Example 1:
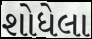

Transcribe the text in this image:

શોધેલા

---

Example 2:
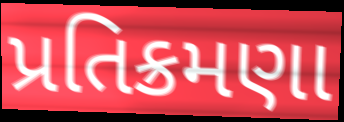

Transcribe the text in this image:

પ્રતિક્રમણા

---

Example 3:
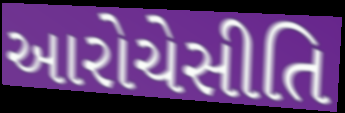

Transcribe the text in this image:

આરોચેસીતિ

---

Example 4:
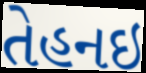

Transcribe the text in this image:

તેહનઇ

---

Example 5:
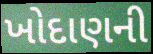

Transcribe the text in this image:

ખોદાણની